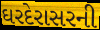
ઘરદેરાસરની